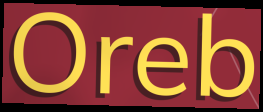
Oreb